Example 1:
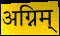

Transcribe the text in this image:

अग्निम्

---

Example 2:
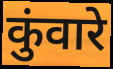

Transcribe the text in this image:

कुंवारे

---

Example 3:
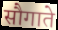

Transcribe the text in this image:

सौगाते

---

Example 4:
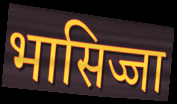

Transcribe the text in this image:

भासिज्जा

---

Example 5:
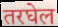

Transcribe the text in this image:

तरघेल